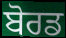
ਬੋਰਡ